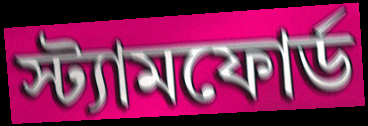
স্ট্যামফোর্ড